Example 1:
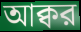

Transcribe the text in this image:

আক্বর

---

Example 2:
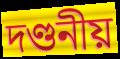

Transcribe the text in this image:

দণ্ডনীয়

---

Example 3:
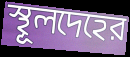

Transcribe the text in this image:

স্থূলদেহের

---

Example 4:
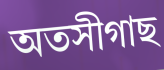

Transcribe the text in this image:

অতসীগাছ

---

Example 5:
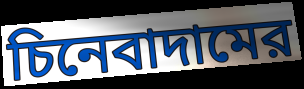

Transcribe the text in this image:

চিনেবাদামের